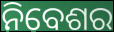
ନିବେଶର